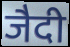
जैदी